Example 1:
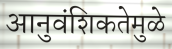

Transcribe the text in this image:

आनुवंशिकतेमुळे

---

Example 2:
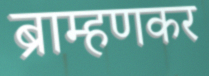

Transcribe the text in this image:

ब्राम्हणकर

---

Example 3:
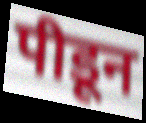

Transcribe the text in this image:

पीडून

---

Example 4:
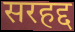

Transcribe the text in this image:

सरहद्द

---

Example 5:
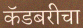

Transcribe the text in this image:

कॅडबरीचा